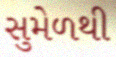
સુમેળથી